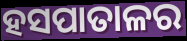
ହସପାତାଳର